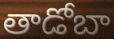
తాడోబా